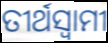
ତୀର୍ଥସ୍ୱାମୀ